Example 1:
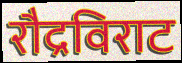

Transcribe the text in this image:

रौद्रविराट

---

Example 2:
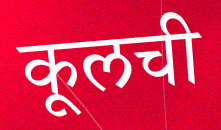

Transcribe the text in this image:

कूलची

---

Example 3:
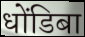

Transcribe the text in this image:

धोंडिबा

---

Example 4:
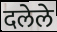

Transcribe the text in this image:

दलेले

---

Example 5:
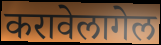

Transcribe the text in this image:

करावेलागेल